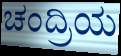
ಚಂದ್ರಿಯ